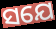
ସଯେ